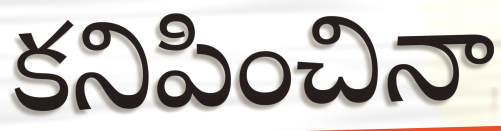
కనిపించినా